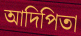
আদিপিতা